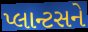
પ્લાન્ટસને